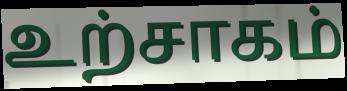
உற்சாகம்